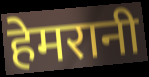
हेमरानी